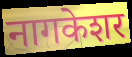
नागकेशर